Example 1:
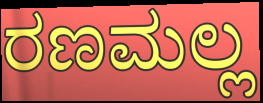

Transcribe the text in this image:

ರಣಮಲ್ಲ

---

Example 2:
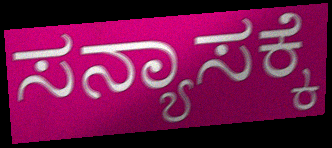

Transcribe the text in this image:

ಸನ್ಯಾಸಕ್ಕೆ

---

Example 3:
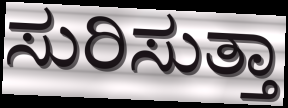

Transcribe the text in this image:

ಸುರಿಸುತ್ತಾ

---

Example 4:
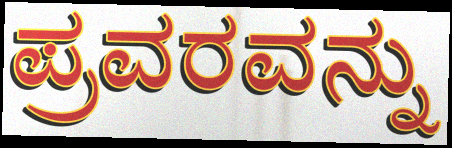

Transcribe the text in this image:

ಪ್ರವರವನ್ನು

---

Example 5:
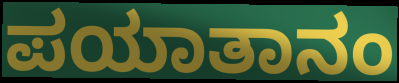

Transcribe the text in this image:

ಪಯಾತಾನಂ